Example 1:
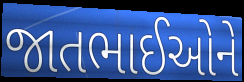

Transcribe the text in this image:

જાતભાઈઓને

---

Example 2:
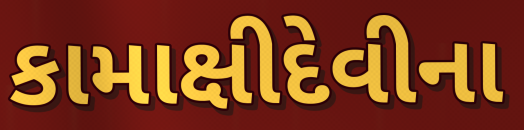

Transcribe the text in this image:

કામાક્ષીદેવીના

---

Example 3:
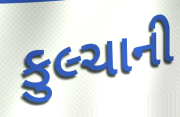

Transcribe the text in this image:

કુલ્ચાની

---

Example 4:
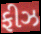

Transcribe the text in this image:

ફીઝ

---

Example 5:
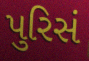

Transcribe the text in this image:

પુરિસં